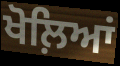
ਖੋਲ਼ਿਆਂ